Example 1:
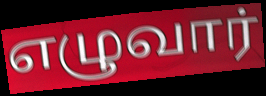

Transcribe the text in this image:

எழுவார்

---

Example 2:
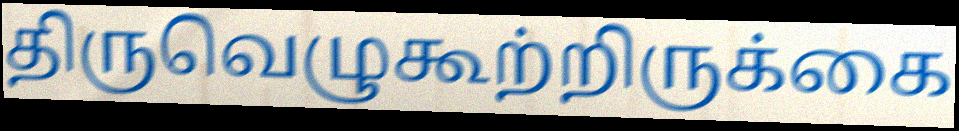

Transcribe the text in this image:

திருவெழுகூற்றிருக்கை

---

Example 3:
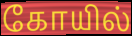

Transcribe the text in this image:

கோயில்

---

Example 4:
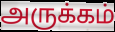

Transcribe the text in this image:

அருக்கம்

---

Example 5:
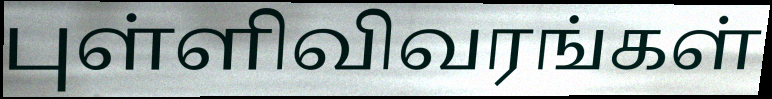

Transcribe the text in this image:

புள்ளிவிவரங்கள்